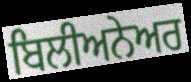
ਬਿਲੀਅਨੇਅਰ